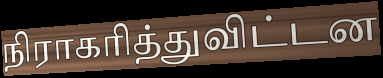
நிராகரித்துவிட்டன